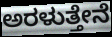
ಅರಳುತ್ತೇನೆ